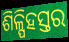
ଶିଳ୍ପିହସ୍ତର